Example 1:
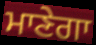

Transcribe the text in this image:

ਮਾਣੇਗਾ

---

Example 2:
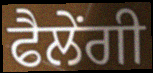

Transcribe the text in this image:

ਫੈਲੇਂਗੀ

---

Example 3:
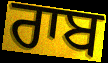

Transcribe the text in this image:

ਰਾਬ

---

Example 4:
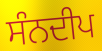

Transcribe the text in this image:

ਸੰਨਦੀਪ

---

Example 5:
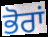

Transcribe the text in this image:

ਭੋਰਾਂ